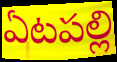
ఏటపల్లి